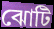
ঝোটি